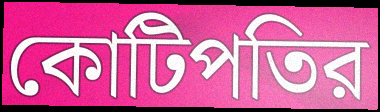
কোটিপতির